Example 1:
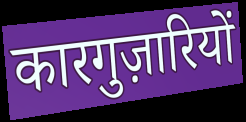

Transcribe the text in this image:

कारगुज़ारियों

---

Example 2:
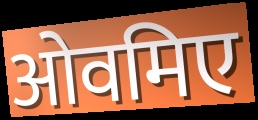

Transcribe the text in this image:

ओवमिए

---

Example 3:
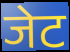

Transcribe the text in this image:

जेट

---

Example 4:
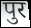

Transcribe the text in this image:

पुर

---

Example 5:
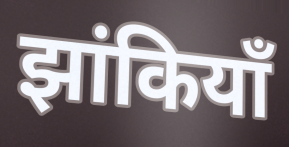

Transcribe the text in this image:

झांकियाँ